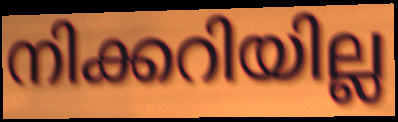
നിക്കറിയില്ല